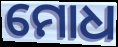
ମୋଧ